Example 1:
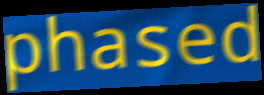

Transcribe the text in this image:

phased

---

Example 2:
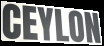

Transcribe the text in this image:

CEYLON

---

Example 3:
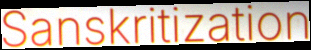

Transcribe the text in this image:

Sanskritization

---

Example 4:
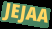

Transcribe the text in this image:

JEJAA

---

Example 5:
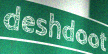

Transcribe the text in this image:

deshdoot